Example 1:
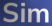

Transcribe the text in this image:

Sim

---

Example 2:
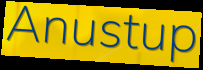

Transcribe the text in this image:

Anustup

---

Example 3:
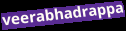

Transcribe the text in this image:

veerabhadrappa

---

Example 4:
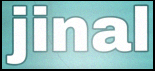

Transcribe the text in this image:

jinal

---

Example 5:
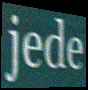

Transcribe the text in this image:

jede